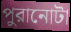
পুরানোটা